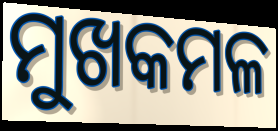
ମୁଖକମଳ